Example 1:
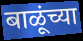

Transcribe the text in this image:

बाळूंच्या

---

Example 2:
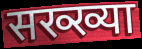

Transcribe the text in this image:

सख्ख्या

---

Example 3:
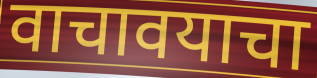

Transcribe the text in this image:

वाचावयाचा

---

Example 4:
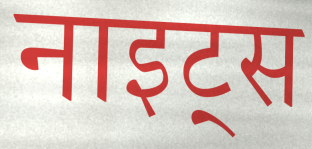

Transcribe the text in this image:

नाइट्‌स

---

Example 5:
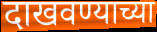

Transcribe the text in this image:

दाखवण्याच्या